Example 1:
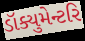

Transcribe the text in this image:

ડૉક્યુમેન્ટરિ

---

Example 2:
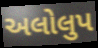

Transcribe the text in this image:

અલોલુપ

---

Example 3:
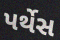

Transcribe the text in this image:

પર્થેસ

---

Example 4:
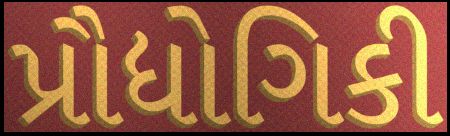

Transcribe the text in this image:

પ્રૌદ્યોગિકી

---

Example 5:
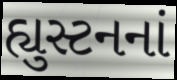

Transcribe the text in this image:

હ્યુસ્ટનનાં